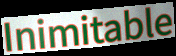
Inimitable